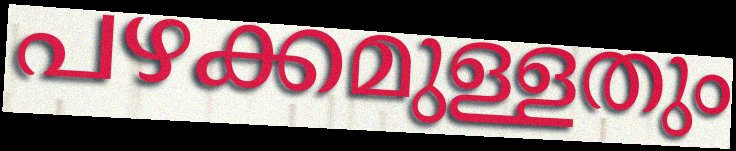
പഴക്കമുള്ളതും